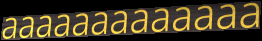
aaaaaaaaaaaaa